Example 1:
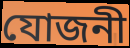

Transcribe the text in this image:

যোজনী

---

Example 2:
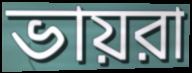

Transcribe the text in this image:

ভায়রা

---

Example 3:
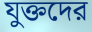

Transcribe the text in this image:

যুক্তদের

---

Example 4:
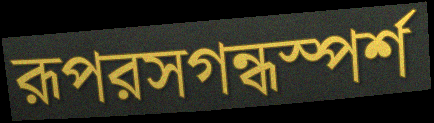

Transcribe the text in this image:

রূপরসগন্ধস্পর্শ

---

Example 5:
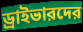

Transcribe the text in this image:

ড্রাইভারদের